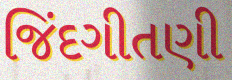
જિંદગીતણી